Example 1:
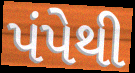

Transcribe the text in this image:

પંપેથી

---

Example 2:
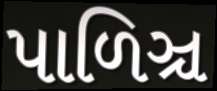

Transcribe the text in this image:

પાળિઞ્ચ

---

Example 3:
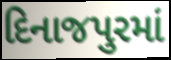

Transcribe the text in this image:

દિનાજપુરમાં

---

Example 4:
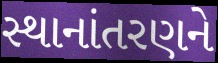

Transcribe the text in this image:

સ્થાનાંતરણને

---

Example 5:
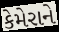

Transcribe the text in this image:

કેમેરાને